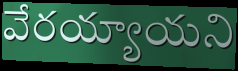
వేరయ్యాయని